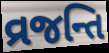
વ્રજન્તિ